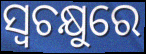
ସ୍ୱଚକ୍ଷୁରେ